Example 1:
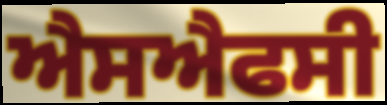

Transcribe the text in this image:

ਐਸਐਫਸੀ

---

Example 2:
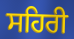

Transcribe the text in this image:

ਸਹਿਰੀ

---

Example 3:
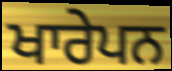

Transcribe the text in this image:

ਖਾਰੇਪਨ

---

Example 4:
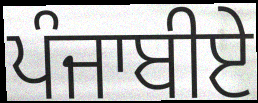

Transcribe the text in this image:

ਪੰਜਾਬੀਏ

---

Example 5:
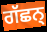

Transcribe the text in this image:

ਗੱਛਨ੍